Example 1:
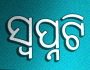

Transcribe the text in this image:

ସ୍ୱପ୍ନଟି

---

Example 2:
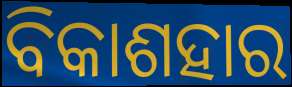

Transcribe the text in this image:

ବିକାଶହାର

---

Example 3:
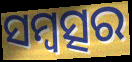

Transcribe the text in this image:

ସମ୍ବତ୍ସର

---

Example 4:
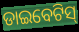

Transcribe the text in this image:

ଡାଇବେଟିସ୍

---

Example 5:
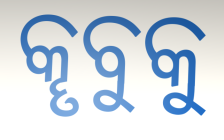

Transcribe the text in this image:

କୄବୁକୁ